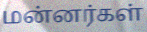
மன்னர்கள்